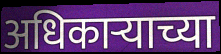
अधिकाऱ्याच्या